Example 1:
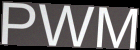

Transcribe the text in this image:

PWM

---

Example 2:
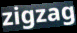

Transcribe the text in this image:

zigzag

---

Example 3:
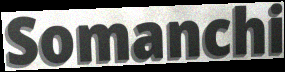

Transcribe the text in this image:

Somanchi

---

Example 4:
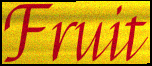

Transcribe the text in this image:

Fruit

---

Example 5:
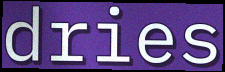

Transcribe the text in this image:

dries